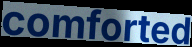
comforted